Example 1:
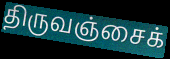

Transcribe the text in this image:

திருவஞ்சைக்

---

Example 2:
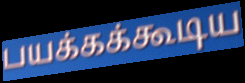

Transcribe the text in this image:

பயக்கக்கூடிய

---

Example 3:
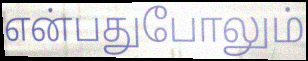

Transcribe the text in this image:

என்பதுபோலும்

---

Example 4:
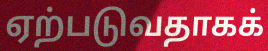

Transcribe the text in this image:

ஏற்படுவதாகக்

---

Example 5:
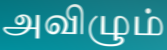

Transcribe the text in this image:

அவிழும்